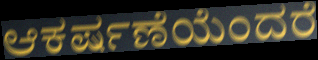
ಆಕರ್ಷಣೆಯೆಂದರೆ